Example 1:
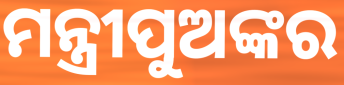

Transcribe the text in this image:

ମନ୍ତ୍ରୀପୁଅଙ୍କର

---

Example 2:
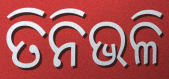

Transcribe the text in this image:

ତିନିଭଳି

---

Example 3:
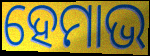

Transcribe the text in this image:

ହେମାଭ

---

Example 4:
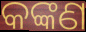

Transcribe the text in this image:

କଙ୍କଣ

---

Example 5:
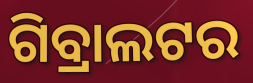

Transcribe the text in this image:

ଗିବ୍ରାଲଟର